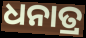
ଧନାତ୍ର